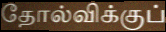
தோல்விக்குப்